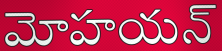
మోహయన్